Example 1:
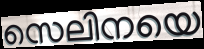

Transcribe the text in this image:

സെലിനയെ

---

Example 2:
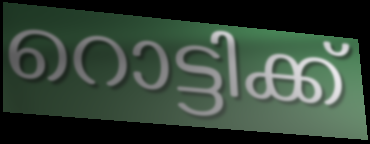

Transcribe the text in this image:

റൊട്ടിക്ക്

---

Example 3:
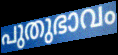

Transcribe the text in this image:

പുതുഭാവം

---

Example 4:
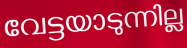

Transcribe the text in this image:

വേട്ടയാടുന്നില്ല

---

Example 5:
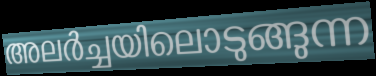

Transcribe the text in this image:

അലർച്ചയിലൊടുങ്ങുന്ന